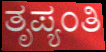
ತೃಪ್ಯಂತಿ